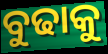
ବୁଢାକୁ